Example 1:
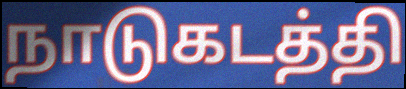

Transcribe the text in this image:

நாடுகடத்தி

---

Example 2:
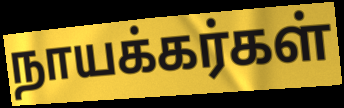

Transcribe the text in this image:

நாயக்கர்கள்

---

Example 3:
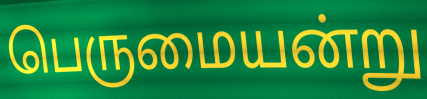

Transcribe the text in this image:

பெருமையன்று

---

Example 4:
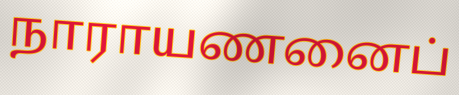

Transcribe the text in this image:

நாராயணனைப்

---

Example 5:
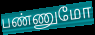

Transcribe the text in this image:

பண்ணுமோ